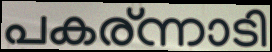
പകര്ന്നാടി